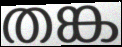
തങ്ക